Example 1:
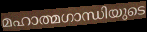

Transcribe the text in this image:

മഹാത്മഗാന്ധിയുടെ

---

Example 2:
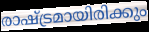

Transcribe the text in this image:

രാഷ്ട്രമായിരിക്കും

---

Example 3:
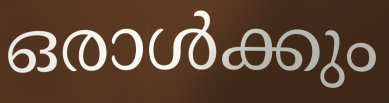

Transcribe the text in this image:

ഒരാൾക്കും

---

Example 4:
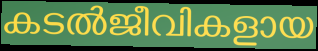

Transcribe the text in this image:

കടൽജീവികളായ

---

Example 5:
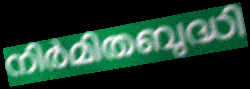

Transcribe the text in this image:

നിർമിതബുദ്ധി